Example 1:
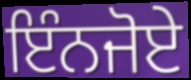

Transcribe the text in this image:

ਇੰਨਜੋਏ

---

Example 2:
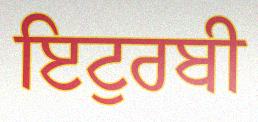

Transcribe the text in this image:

ਇਟੁਰਬੀ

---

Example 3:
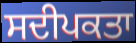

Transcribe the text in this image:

ਸਦੀਪਕਤਾ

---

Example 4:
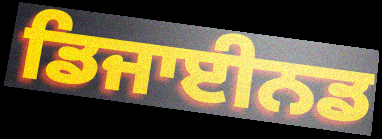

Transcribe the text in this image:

ਡਿਜਾਈਨਡ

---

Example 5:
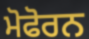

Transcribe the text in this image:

ਮੋਫੋਰਨ